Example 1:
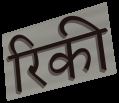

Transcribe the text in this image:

रिकी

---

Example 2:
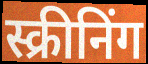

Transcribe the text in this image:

स्क्रीनिंग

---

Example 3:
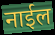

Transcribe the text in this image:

नाईल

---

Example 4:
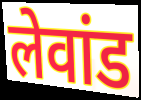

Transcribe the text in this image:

लेवांड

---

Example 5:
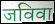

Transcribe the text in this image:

जविवा